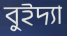
বুইদ্যা